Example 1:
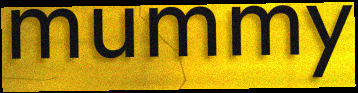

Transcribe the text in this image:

mummy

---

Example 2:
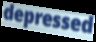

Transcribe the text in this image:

depressed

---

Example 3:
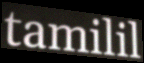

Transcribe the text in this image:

tamilil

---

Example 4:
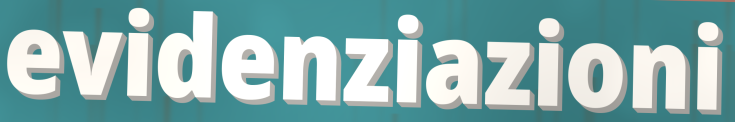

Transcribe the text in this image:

evidenziazioni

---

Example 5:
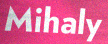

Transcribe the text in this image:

Mihaly